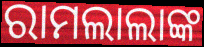
ରାମଲାଲାଙ୍କ